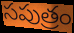
సపుత్రం